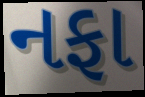
નફા